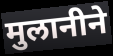
मुलानीने